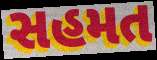
સહમત